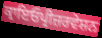
ਕ੍ਰਾਇਓਪ੍ਰੀਜ਼ਰਵੇਸ਼ਨ